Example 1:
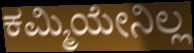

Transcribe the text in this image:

ಕಮ್ಮಿಯೇನಿಲ್ಲ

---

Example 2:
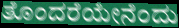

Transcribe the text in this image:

ತೊಂದರೆಯೇನೆಂದು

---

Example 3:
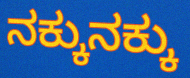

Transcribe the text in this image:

ನಕ್ಕುನಕ್ಕು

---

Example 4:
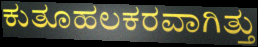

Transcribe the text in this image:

ಕುತೂಹಲಕರವಾಗಿತ್ತು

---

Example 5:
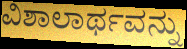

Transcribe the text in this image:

ವಿಶಾಲಾರ್ಥವನ್ನು